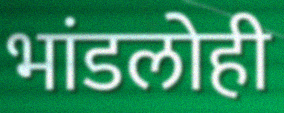
भांडलोही